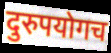
दुरुपयोगच